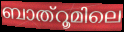
ബാത്റൂമിലെ